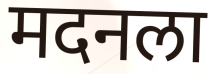
मदनला